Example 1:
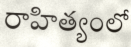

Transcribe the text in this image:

రాహిత్యంలో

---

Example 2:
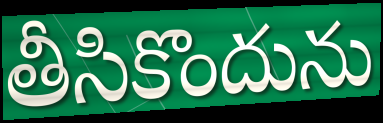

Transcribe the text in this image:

తీసికొందును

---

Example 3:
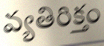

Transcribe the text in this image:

వ్యతిరిక్తం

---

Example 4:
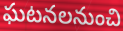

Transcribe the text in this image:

ఘటనలనుంచి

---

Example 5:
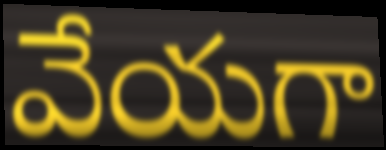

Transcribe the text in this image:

వేయగా